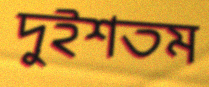
দুইশতম